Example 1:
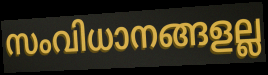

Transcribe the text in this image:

സംവിധാനങ്ങളല്ല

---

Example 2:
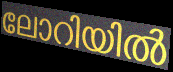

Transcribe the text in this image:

ലോറിയിൽ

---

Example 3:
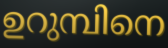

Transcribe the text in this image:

ഉറുമ്പിനെ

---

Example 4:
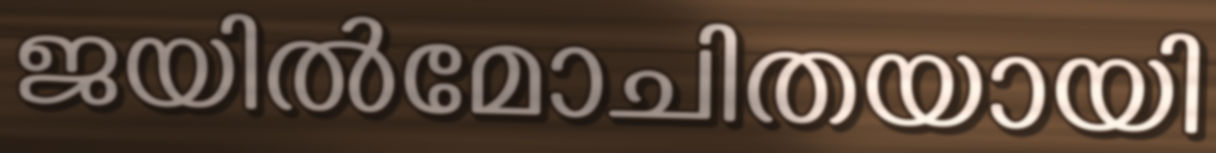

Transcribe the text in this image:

ജയിൽമോചിതയായി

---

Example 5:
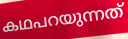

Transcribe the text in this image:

കഥപറയുന്നത്